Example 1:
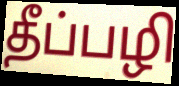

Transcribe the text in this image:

தீப்பழி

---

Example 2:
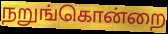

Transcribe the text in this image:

நறுங்கொன்றை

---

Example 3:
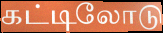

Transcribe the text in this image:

கட்டிலோடு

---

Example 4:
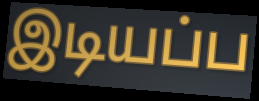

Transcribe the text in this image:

இடியப்ப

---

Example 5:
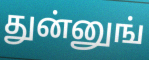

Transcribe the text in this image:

துன்னுங்